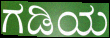
ಗಡಿಯ